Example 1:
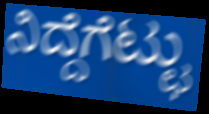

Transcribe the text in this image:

ನಿದ್ದೆಗೆಟ್ಟು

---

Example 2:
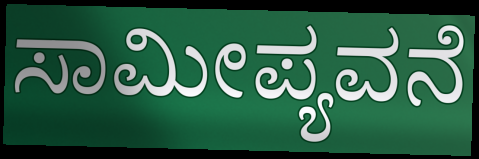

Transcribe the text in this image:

ಸಾಮೀಪ್ಯವನೆ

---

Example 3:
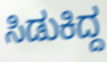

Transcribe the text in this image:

ಸಿಡುಕಿದ್ದ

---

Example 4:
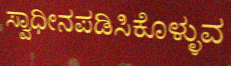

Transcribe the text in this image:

ಸ್ವಾಧೀನಪಡಿಸಿಕೊಳ್ಳುವ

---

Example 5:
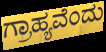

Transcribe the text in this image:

ಗ್ರಾಹ್ಯವೆಂದು